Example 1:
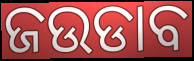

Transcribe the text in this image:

ଜଉଡାବ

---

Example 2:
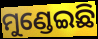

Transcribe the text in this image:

ମୁଣ୍ଡେଇଛି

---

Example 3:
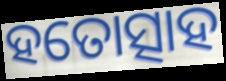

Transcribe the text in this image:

ହତୋତ୍ସାହ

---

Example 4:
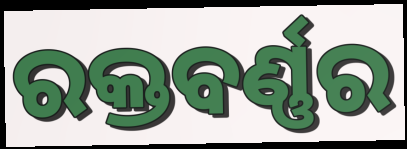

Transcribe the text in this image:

ରକ୍ତବର୍ଣ୍ଣର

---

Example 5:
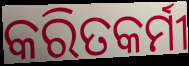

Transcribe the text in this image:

କରିତକର୍ମୀ